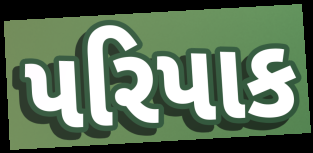
પરિપાક